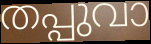
തപ്പുവാ